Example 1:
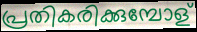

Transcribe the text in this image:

പ്രതികരിക്കുമ്പോള്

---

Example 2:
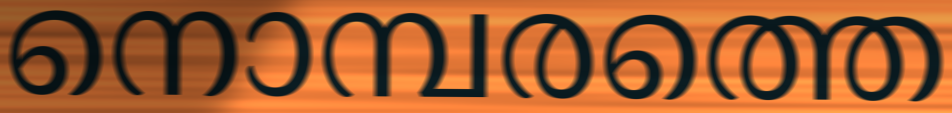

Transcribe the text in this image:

നൊമ്പരത്തെ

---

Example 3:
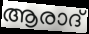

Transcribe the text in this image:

ആരാദ്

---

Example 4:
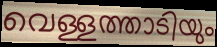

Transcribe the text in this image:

വെള്ളത്താടിയും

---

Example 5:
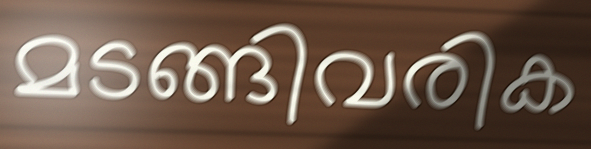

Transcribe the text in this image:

മടങ്ങിവരിക